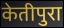
केतीपुरा